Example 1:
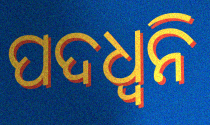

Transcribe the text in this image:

ପଦଧ୍ଵନି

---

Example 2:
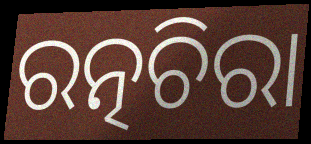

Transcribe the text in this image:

ରତ୍ନଚିରା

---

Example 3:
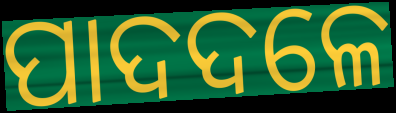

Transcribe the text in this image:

ପାଦଦଳେ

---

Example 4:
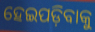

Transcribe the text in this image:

ହେଇପଡ଼ିବାକୁ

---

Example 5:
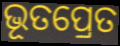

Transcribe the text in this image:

ଭୂତପ୍ରେତ